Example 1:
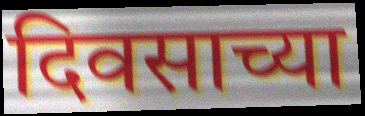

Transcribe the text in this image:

दिवसाच्या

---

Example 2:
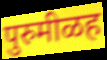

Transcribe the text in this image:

पुरुमीळह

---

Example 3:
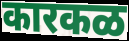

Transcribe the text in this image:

कारकळ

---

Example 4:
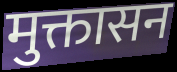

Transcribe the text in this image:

मुक्तासन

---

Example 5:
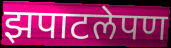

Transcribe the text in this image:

झपाटलेपण